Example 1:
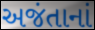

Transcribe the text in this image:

અજંતાનાં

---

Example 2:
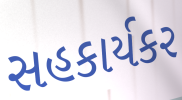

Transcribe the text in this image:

સહકાર્યકર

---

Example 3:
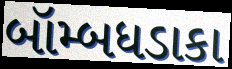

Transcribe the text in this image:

બૉમ્બધડાકા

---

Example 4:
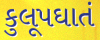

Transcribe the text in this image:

કુલૂપઘાતં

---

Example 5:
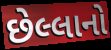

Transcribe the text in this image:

છેલ્લાનો